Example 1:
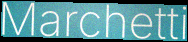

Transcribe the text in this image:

Marchetti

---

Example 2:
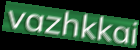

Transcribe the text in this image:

vazhkkai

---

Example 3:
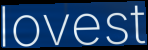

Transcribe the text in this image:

lovest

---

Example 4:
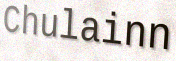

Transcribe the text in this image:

Chulainn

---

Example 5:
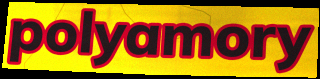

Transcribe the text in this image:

polyamory